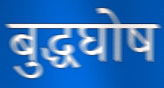
बुद्धघोष